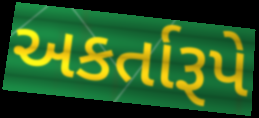
અકર્તારૂપે